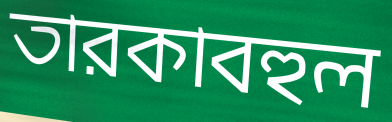
তারকাবহুল